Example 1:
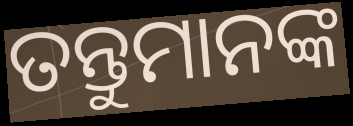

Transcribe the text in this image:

ତନ୍ତୁମାନଙ୍କ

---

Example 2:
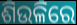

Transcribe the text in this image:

ଶିଉଳିରେ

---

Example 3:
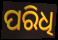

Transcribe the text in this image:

ପରିଧି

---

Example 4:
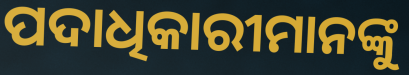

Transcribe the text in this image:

ପଦାଧିକାରୀମାନଙ୍କୁ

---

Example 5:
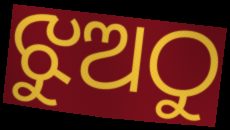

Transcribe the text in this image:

ଝୁଅଠୁ